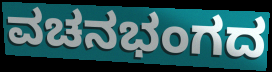
ವಚನಭಂಗದ